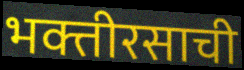
भक्तीरसाची